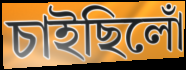
চাইছিলোঁ